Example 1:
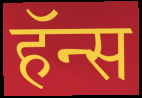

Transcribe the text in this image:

हॅन्स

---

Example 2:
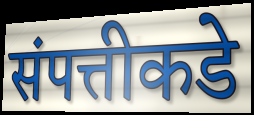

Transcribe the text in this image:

संपत्तीकडे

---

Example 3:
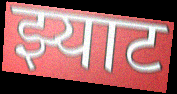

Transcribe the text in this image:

झ्याट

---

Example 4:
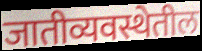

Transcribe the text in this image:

जातीव्यवस्थेतील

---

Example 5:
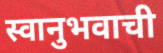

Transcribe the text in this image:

स्वानुभवाची